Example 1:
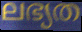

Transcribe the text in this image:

ലഭ്യത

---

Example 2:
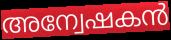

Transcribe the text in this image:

അന്വേഷകൻ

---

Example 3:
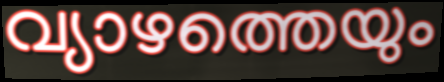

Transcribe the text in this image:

വ്യാഴത്തെയും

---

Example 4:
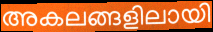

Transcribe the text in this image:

അകലങ്ങളിലായി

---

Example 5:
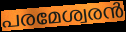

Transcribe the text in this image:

പരമേശ്വരൻ